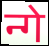
न्गे